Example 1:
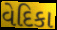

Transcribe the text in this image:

વેદિકા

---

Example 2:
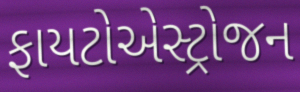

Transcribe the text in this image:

ફાયટોએસ્ટ્રોજન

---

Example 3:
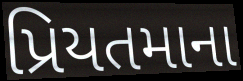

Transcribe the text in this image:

પ્રિયતમાના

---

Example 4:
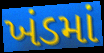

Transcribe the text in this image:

ખંડમાં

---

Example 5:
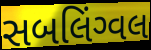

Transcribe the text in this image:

સબલિંગ્વલ